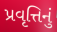
પ્રવૃત્તિનું